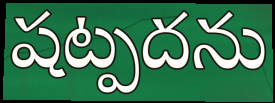
షట్పదను